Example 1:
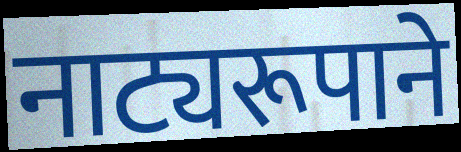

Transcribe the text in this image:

नाट्यरूपाने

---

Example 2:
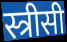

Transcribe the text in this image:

स्त्रीसी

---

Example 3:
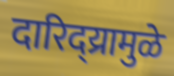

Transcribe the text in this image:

दारिद्य्रामुळे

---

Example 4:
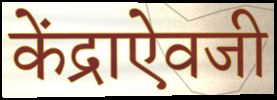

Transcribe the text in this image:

केंद्राऐवजी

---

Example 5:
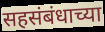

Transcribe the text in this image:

सहसंबंधाच्या